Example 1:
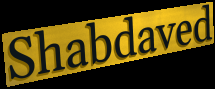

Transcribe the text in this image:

Shabdaved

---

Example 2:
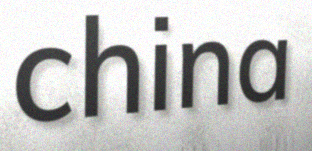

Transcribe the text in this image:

china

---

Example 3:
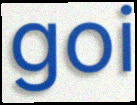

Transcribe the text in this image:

goi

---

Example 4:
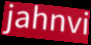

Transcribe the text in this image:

jahnvi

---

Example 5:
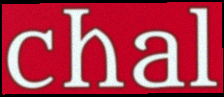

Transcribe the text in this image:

chal